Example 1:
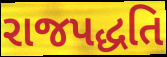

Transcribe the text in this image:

રાજપદ્ધતિ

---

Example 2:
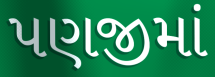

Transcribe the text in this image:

પણજીમાં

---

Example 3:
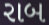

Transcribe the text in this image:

રાબ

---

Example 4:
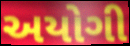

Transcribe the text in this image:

અયોગી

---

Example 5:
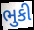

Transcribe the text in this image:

ભુકી